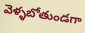
వెళ్ళబోతుండగా